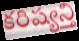
కరిష్యన్తి